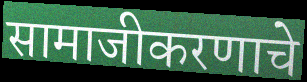
सामाजीकरणाचे